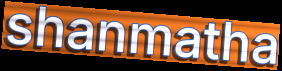
shanmatha